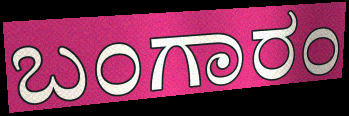
ಬಂಗಾರಂ